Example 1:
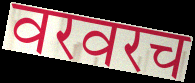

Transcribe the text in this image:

वरवरच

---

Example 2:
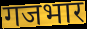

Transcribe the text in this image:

गजभार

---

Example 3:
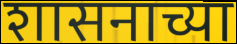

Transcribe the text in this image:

शासनाच्या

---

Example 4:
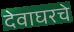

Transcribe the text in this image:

देवाघरचे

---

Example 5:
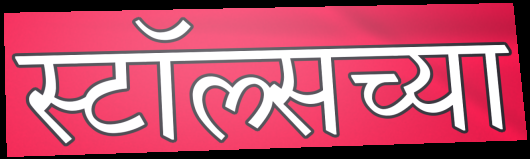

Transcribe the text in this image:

स्टॉल्सच्या